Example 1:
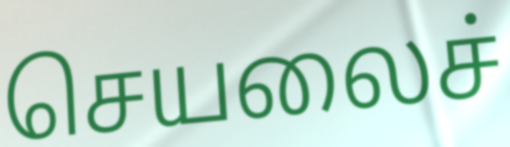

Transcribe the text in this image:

செயலைச்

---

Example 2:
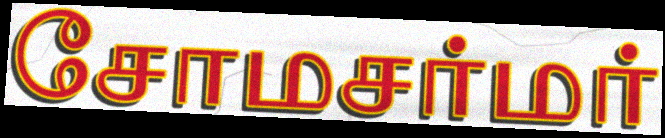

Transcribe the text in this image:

சோமசர்மர்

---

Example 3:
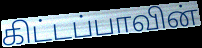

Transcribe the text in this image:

கிட்டப்பாவின்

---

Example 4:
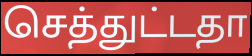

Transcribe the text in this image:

செத்துட்டதா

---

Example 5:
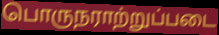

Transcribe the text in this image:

பொருநராற்றுப்படை